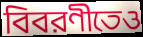
বিবরণীতেও